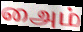
அைம்